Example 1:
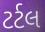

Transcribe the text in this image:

ટર્ટલ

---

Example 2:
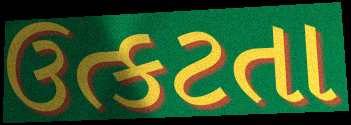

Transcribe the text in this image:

ઉત્કટતા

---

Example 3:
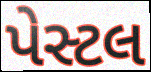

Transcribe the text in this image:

પેસ્ટલ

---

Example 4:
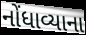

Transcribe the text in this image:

નોંધાવ્યાના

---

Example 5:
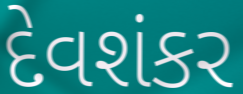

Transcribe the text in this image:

દેવશંકર